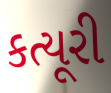
કત્યૂરી